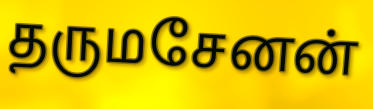
தருமசேனன்